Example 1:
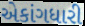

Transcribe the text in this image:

એકાંગધારી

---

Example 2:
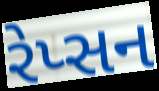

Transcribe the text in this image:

રેપ્સન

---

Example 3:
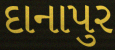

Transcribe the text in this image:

દાનાપુર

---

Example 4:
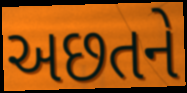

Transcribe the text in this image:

અછતને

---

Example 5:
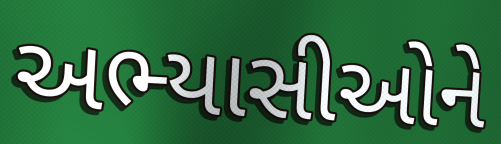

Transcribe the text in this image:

અભ્યાસીઓને